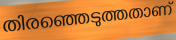
തിരഞ്ഞെടുത്തതാണ്